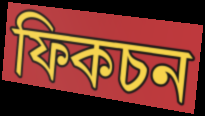
ফিকচন